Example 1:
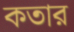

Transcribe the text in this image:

কতার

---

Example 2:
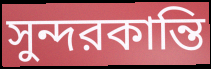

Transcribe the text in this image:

সুন্দরকান্তি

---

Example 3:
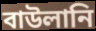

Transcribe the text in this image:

বাউলানি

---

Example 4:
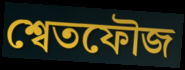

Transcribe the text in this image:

শ্বেতফৌজ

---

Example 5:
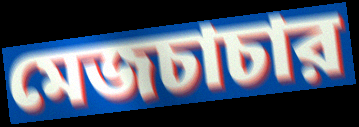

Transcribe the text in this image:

মেজচাচার